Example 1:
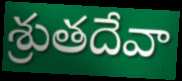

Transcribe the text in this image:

శ్రుతదేవా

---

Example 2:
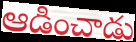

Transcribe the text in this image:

ఆడించాడు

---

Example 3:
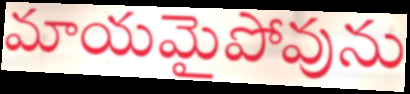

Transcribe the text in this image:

మాయమైపోవును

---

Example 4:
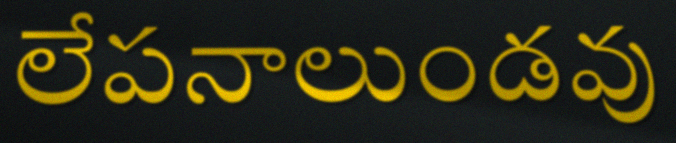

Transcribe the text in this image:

లేపనాలుండవు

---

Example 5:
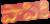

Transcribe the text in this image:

పాపికి